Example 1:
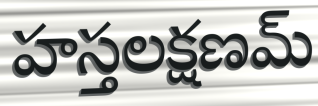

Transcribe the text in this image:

హస్తలక్షణమ్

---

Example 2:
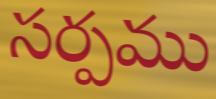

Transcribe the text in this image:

సర్పము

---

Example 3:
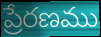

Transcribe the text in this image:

ప్రేరణము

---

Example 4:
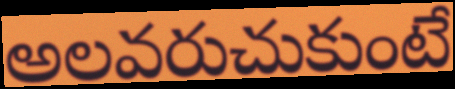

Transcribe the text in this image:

అలవరుచుకుంటే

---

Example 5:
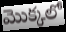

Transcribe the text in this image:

మొక్కలో